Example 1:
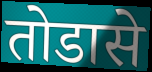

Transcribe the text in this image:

तोडासे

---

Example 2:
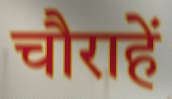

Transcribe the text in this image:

चौराहें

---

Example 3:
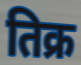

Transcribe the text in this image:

तिक्र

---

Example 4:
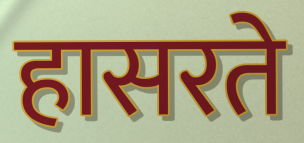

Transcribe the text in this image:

हासरते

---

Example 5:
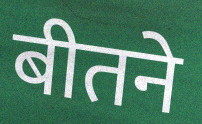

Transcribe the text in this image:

बीतने